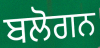
ਬਲੋਗਨ